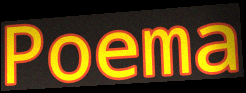
Poema